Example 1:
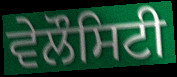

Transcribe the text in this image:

ਵੇਲੌਸਿਟੀ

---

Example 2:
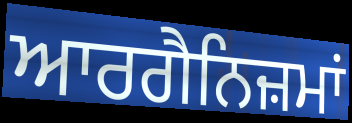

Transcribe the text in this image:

ਆਰਗੈਨਿਜ਼ਮਾਂ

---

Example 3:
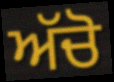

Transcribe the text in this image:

ਅੱਚੋ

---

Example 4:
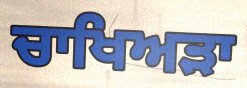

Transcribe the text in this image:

ਚਾਖਿਅੜਾ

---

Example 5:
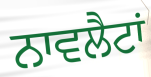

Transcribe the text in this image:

ਨਾਵਲੈਟਾਂ